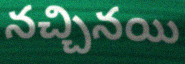
నచ్చినయి